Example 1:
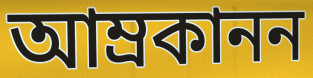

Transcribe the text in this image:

আম্রকানন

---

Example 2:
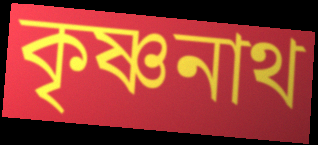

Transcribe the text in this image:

কৃষ্ণনাথ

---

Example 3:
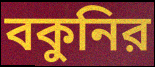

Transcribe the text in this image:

বকুনির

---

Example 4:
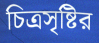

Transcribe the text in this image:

চিত্রসৃষ্টির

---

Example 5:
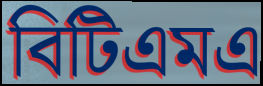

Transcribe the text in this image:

বিটিএমএ